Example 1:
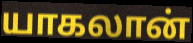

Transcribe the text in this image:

யாகலான்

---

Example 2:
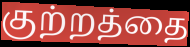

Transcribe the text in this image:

குற்றத்தை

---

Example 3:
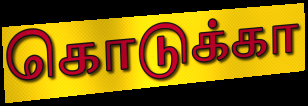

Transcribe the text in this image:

கொடுக்கா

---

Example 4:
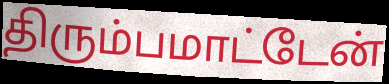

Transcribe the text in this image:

திரும்பமாட்டேன்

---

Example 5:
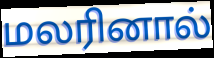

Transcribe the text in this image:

மலரினால்